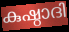
കുഷ്ഠാദി